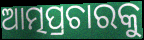
ଆତ୍ମପ୍ରଚାରକୁ